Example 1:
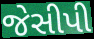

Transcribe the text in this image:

જેસીપી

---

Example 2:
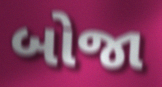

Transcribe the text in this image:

બોજા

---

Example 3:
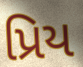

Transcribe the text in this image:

પ્રિય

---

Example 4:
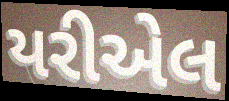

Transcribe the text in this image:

યરીએલ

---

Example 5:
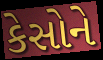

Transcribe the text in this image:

કેસોને